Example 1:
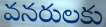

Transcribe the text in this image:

వనరులకు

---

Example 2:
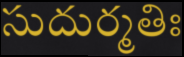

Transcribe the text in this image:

సుదుర్మతిః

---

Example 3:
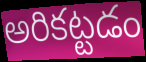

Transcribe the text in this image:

అరికట్టడం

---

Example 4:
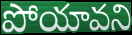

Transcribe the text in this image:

పోయావని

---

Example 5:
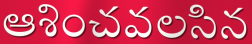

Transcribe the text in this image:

ఆశించవలసిన